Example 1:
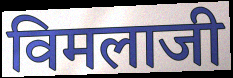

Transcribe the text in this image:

विमलाजी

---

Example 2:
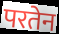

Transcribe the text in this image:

परतेन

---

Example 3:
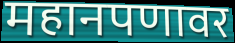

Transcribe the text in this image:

महानपणावर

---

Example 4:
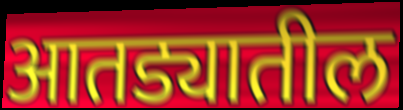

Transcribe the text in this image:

आतड्यातील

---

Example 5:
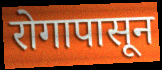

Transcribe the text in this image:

रोगापासून